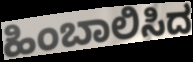
ಹಿಂಬಾಲಿಸಿದ